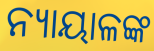
ନ୍ୟାୟାଳଙ୍କ